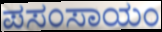
ಪಸಂಸಾಯಂ